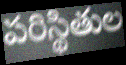
పరిస్థితుల